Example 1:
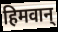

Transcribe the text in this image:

हिमवान्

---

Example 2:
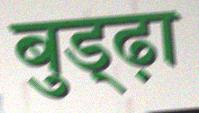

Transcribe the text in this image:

बुड्ढ़ा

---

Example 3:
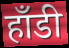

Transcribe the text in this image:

हाँडी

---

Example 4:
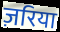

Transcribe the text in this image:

ज़रिया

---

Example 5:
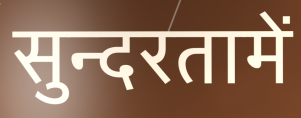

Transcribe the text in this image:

सुन्दरतामें